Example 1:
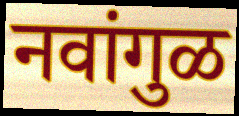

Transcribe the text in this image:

नवांगुळ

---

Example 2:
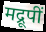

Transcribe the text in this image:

मद्रूपीं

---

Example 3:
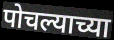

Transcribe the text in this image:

पोचल्याच्या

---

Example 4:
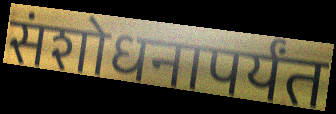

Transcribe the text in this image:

संशोधनापर्यंत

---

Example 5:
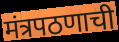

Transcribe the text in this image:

मंत्रपठणाची